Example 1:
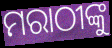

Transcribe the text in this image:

ମରାଠୀଙ୍କୁ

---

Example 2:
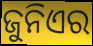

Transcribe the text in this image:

ଜୁନିଏର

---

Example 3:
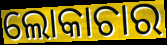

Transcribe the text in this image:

ଲୋକାଚାର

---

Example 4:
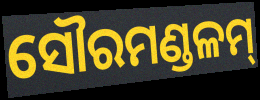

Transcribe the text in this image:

ସୌରମଣ୍ଡଳମ୍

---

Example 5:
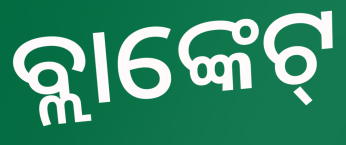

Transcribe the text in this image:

ବ୍ଲାଙ୍କେଟ୍